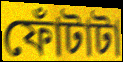
ফোঁটাটা